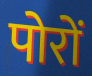
पोरों